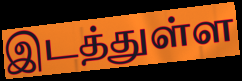
இடத்துள்ள